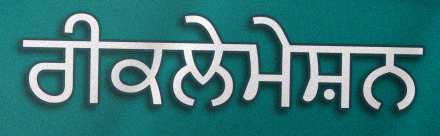
ਰੀਕਲੇਮੇਸ਼ਨ